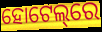
ହୋଟେଲ୍‌ରେ